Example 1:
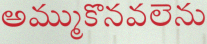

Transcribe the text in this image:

అమ్ముకొనవలెను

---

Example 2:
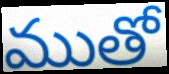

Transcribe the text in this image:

ముతో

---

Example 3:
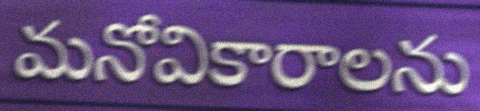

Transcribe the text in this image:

మనోవికారాలను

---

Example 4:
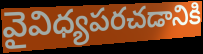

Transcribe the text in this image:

వైవిధ్యపరచడానికి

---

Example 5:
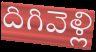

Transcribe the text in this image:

దిగివెళ్లి